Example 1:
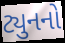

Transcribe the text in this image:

ટ્યુનનો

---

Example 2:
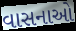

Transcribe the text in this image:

વાસનાઓ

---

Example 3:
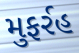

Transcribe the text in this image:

મુફર્રહ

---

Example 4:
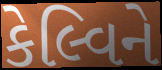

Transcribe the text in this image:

કેલ્વિને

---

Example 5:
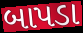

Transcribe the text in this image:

બાપડા